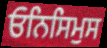
ਓਨਿਸਿਮੁਸ